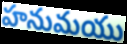
హనుమయు